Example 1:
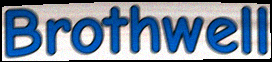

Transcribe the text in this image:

Brothwell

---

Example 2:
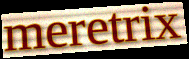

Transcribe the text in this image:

meretrix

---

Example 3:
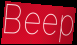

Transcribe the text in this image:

Beep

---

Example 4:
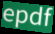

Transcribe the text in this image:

epdf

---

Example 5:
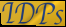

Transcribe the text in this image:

IDPs